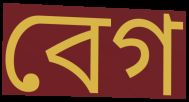
বেগ